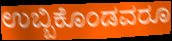
ಉಬ್ಬಿಕೊಂಡವರೂ